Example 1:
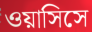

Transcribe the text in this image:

ওয়াসিসে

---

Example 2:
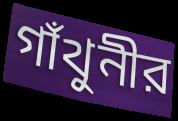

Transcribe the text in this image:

গাঁথুনীর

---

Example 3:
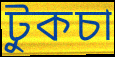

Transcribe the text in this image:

টুকচা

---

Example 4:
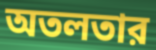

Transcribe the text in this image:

অতলতার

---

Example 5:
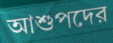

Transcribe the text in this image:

আশুপদের